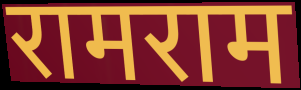
रामराम